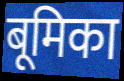
बूमिका